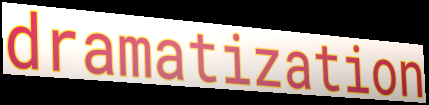
dramatization